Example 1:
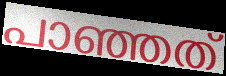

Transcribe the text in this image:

പാഞ്ഞത്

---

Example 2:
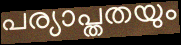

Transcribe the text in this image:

പര്യാപ്തതയും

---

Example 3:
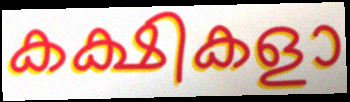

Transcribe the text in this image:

കക്ഷികളാ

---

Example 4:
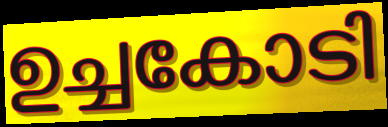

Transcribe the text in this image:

ഉച്ചകോടി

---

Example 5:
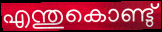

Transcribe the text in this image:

എന്തുകൊണ്ടു്